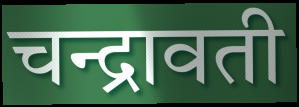
चन्द्रावती